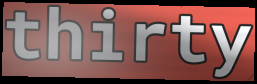
thirty